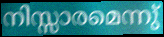
നിസ്സാരമെന്നു്